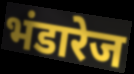
भंडारेज